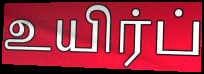
உயிர்ப்